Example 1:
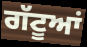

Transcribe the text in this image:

ਗੱਟੂਆਂ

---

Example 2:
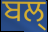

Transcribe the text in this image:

ਬਲ੍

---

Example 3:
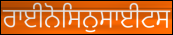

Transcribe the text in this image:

ਰਾਈਨੋਸਿਨੁਸਾਈਟਸ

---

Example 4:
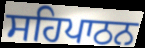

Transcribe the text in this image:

ਸਹਿਪਾਠਨ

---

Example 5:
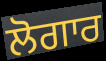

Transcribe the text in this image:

ਲੋਗਾਰ